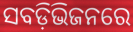
ସବଡ଼ିଭିଜନରେ